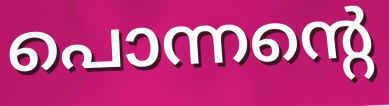
പൊന്നന്റെ